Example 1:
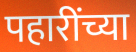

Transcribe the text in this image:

पहारींच्या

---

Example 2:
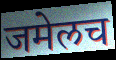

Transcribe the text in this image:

जमेलच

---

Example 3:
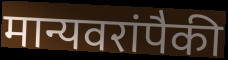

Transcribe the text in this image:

मान्यवरांपैकी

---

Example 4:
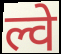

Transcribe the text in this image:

ल्वे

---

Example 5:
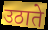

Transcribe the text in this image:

उठाते